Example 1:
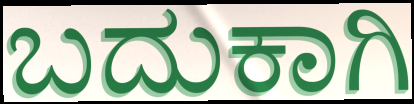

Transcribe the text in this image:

ಬದುಕಾಗಿ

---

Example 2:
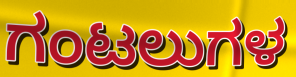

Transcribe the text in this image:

ಗಂಟಲುಗಳ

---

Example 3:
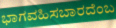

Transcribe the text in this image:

ಭಾಗವಹಿಸಬಾರದೆಂಬ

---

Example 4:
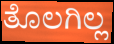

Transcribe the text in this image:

ತೊಲಗಿಲ್ಲ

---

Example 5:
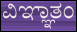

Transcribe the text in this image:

ವಿಞ್ಞಾತಂ